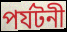
পর্যটনী